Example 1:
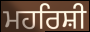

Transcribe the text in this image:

ਮਹਰਿਸ਼ੀ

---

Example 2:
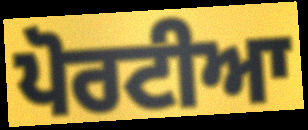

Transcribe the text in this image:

ਪੋਰਟੀਆ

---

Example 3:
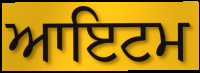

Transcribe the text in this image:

ਆਇਟਮ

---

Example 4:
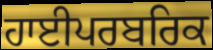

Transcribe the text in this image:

ਹਾਈਪਰਬਰਿਕ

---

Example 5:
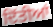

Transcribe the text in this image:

ਦਿੱਤੀਆਂ